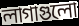
লাগাগুলো